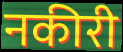
नकीरी